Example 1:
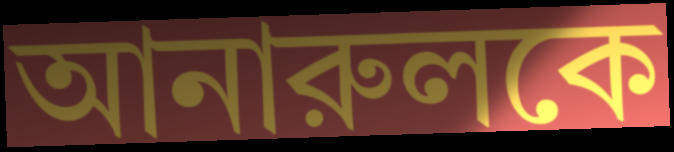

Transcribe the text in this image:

আনারুলকে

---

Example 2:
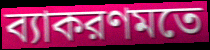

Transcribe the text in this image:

ব্যাকরণমতে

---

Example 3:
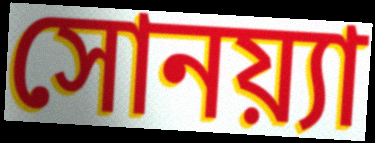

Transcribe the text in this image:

সোনয়্যা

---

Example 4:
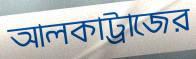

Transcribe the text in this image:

আলকাট্রাজের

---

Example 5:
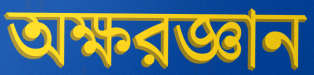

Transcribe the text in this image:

অক্ষরজ্ঞান